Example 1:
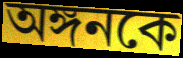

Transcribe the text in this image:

অঙ্গনকে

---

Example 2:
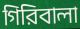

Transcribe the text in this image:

গিরিবালা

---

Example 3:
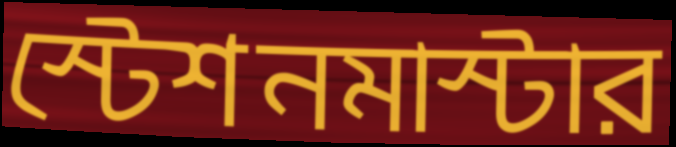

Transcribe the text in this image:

স্টেশনমাস্টার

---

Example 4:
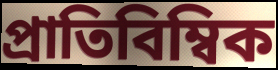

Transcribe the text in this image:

প্রাতিবিম্বিক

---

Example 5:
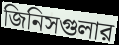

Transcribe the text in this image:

জিনিসগুলার